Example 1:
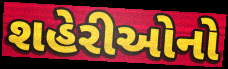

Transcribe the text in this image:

શહેરીઓનો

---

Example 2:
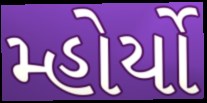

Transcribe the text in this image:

મ્હોર્યો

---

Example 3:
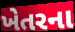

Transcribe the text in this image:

ખેતરના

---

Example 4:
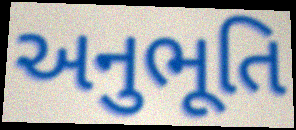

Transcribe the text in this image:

અનુભૂતિ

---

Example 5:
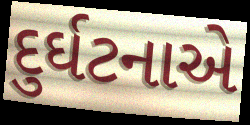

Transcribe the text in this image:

દુર્ઘટનાએ